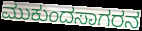
ಮುಕುಂದಸಾಗರನ